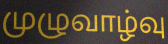
முழுவாழ்வு